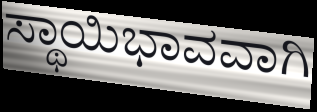
ಸ್ಥಾಯಿಭಾವವಾಗಿ